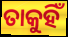
ତାକୁହିଁ